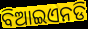
ବିଆଇଏନଡି